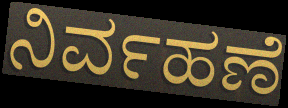
ನಿರ್ವಹಣೆ